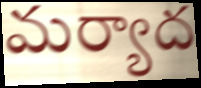
మర్యాద